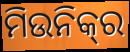
ମିଉନିକ୍‌ର